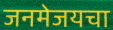
जनमेजयचा